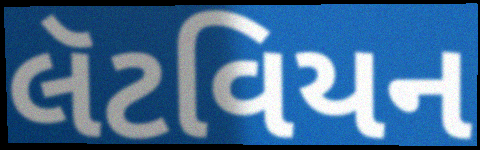
લૅટવિયન